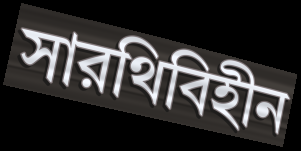
সারথিবিহীন